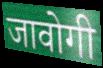
जावोगी